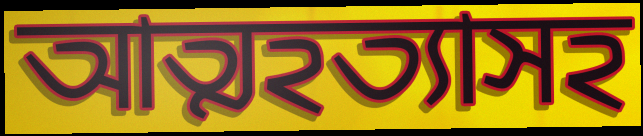
আত্মহত্যাসহ